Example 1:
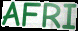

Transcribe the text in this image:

AFRI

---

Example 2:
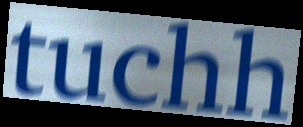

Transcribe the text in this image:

tuchh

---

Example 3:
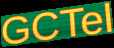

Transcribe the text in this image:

GCTel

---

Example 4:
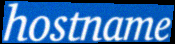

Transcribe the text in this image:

hostname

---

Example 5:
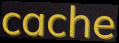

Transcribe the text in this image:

cache